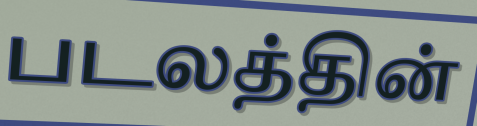
படலத்தின்